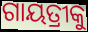
ଗାୟତ୍ରୀକୁ